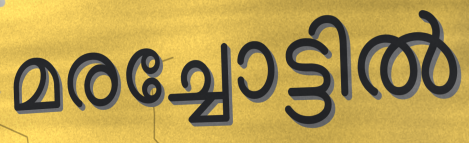
മരച്ചോട്ടിൽ